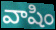
వాషిం